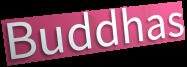
Buddhas